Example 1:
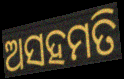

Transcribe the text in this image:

ଅସହମତି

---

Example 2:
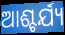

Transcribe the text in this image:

ଆଶ୍ଚର୍ଯ୍ୟ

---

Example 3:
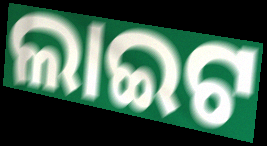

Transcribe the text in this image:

ଲାଇଟ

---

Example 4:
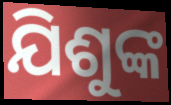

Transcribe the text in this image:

ଯିଶୁଙ୍କ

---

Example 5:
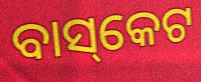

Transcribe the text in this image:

ବାସ୍‌କେଟ